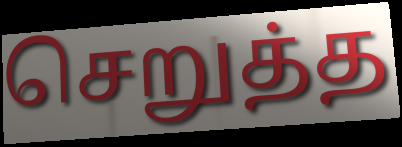
செறுத்த